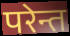
परेन्त